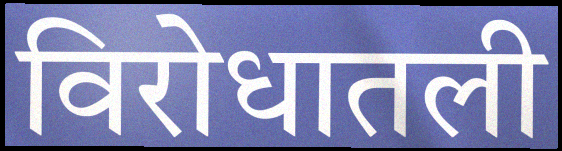
विरोधातली